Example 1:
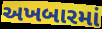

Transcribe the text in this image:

અખબારમાં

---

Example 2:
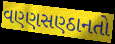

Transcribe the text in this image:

વણ્ણસણ્ઠાનતો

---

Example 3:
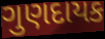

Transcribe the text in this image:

ગુણદાયક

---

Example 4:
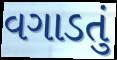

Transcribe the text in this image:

વગાડતું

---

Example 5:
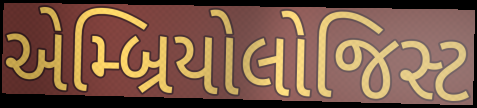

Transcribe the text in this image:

એમ્બ્રિયોલોજિસ્ટ